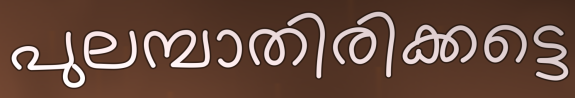
പുലമ്പാതിരിക്കട്ടെ